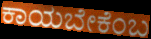
ಕಾಯಬೇಕೆಂಬ